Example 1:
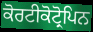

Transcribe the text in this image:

ਕੋਰਟੀਕੋਟ੍ਰੋਪਿਨ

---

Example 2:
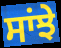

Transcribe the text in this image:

ਸਾਂਝੇ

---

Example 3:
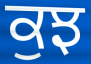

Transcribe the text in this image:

ਕੁਝ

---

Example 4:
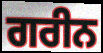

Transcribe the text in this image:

ਗਰੀਨ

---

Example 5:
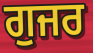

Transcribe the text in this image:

ਗੁਜਰ